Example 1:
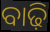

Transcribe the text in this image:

ବାଢ଼ି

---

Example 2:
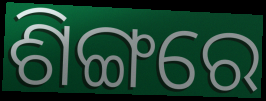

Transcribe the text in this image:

ଶିଙ୍ଗରେ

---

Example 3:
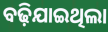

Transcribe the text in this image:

ବଢ଼ିଯାଇଥିଲା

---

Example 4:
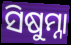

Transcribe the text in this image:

ସିଷୁମ୍ନା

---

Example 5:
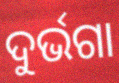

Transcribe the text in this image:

ଦୁର୍ଭଗା